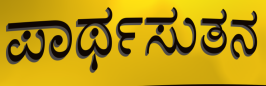
ಪಾರ್ಥಸುತನ